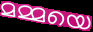
മമ്മയെ